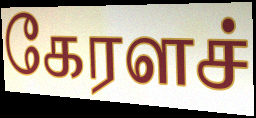
கேரளச்